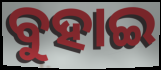
ବୁହାଇ